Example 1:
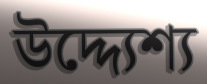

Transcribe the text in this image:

উদ্দ্যেশ্য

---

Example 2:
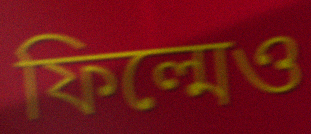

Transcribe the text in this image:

ফিল্মেও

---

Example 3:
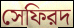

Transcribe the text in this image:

সেফিরদ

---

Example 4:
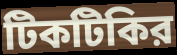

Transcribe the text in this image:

টিকটিকির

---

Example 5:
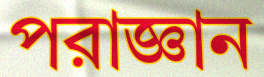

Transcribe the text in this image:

পরাজ্ঞান